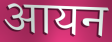
आयन